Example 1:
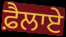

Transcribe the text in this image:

ਫ਼ੈਲਾਏ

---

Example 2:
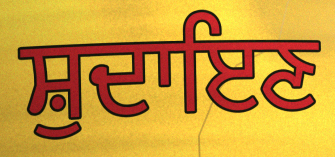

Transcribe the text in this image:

ਸ਼ੁਦਾਇਣ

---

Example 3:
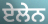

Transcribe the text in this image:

ਏਲੇਨ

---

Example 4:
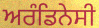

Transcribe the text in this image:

ਅਰੰਡਿਨੇਸੀ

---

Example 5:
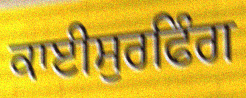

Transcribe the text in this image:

ਕਾਈਸੁਰਫਿੰਗ